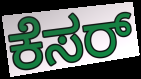
ಕೆಸರ್